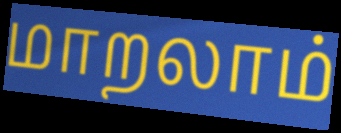
மாறலாம்